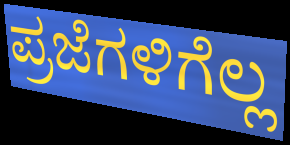
ಪ್ರಜೆಗಳಿಗೆಲ್ಲ